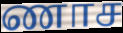
ணாச